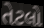
તેટલો